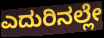
ಎದುರಿನಲ್ಲೇ